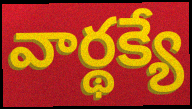
వార్థక్యే